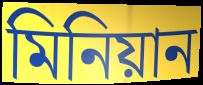
মিনিয়ান